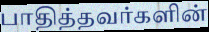
பாதித்தவர்களின்